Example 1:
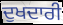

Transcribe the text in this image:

ਦੁਖਦਾਰੀ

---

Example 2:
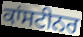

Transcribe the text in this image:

ਕਾਂਸਟੀਨਰ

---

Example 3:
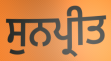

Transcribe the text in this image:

ਸੁਨਪ੍ਰੀਤ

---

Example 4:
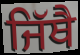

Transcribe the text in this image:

ਜਿੱਥੈ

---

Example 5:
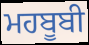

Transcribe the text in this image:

ਮਹਬੂਬੀ